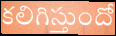
కలిగిస్తుందో